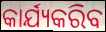
କାର୍ଯ୍ୟକରିବ